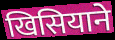
खिसियाने